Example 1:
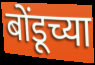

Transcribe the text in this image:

बोंडूच्या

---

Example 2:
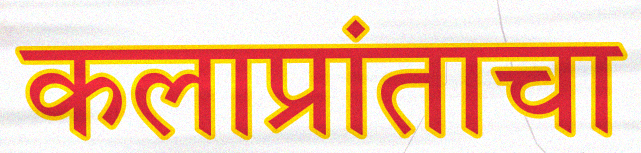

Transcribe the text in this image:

कलाप्रांताचा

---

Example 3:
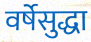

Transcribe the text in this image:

वर्षेसुद्धा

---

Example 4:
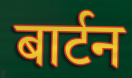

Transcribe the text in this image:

बार्टन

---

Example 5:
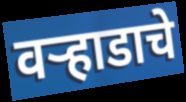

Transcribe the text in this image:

वऱ्हाडाचे